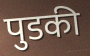
पुडकी